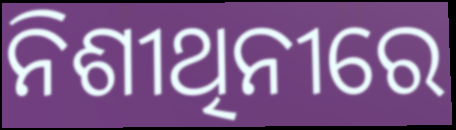
ନିଶୀଥିନୀରେ